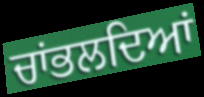
ਚਾਂਭਲਦਿਆਂ